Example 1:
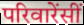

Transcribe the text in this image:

परिवारेंसीं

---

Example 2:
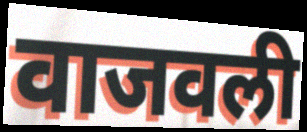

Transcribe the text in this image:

वाजवली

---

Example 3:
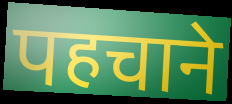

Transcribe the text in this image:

पहचाने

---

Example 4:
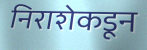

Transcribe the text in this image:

निराशेकडून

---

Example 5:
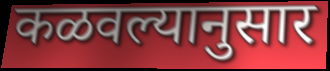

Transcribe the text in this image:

कळवल्यानुसार